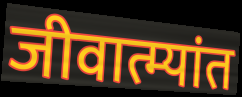
जीवात्म्यांत